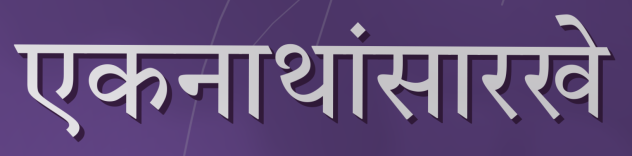
एकनाथांसारखे